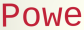
Powe